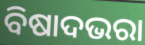
ବିଷାଦଭରା